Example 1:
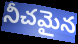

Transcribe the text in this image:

నీచమైన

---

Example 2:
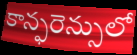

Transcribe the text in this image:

కాన్ఫరెన్సులో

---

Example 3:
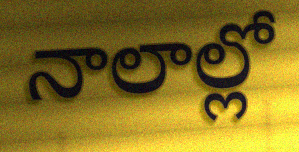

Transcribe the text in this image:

నాలాల్లో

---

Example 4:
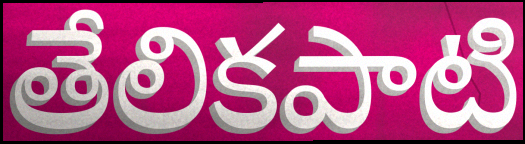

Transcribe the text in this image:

తేలికపాటి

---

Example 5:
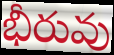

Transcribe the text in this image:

భీరువు